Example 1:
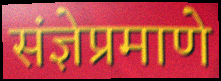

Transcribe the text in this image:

संज्ञेप्रमाणे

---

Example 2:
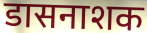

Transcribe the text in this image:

डासनाशक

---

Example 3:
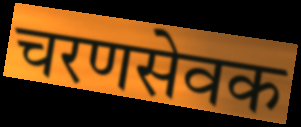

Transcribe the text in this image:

चरणसेवक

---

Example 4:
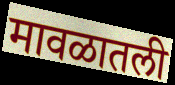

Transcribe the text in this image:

मावळातली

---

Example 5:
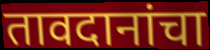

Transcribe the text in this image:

तावदानांचा